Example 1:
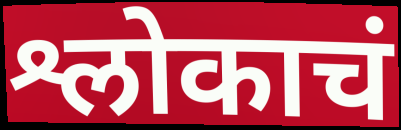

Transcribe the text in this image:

श्लोकाचं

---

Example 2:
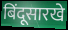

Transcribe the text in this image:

बिंदूसारखे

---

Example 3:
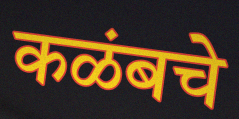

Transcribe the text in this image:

कळंबचे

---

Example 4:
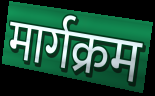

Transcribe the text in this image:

मार्गक्रम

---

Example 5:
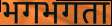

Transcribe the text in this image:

भगभगता